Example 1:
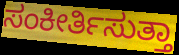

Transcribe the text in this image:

ಸಂಕೀರ್ತಿಸುತ್ತಾ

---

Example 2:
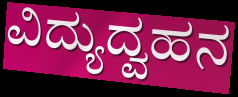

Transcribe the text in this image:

ವಿದ್ಯುದ್ವಹನ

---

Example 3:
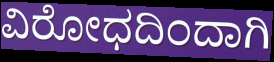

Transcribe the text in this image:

ವಿರೋಧದಿಂದಾಗಿ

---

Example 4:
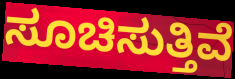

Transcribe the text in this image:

ಸೂಚಿಸುತ್ತಿವೆ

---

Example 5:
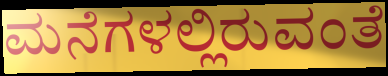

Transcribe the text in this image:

ಮನೆಗಳಲ್ಲಿರುವಂತೆ